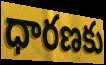
ధారణకు